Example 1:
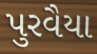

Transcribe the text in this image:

પુરવૈયા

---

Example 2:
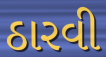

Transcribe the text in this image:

ઠારવી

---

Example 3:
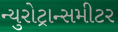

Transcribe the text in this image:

ન્યુરોટ્રાન્સમીટર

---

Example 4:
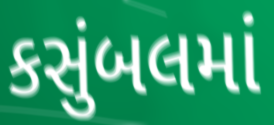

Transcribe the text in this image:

કસુંબલમાં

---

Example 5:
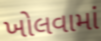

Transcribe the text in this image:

ખોલવામાં